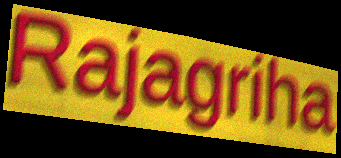
Rajagriha